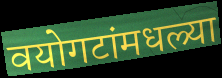
वयोगटांमधल्या